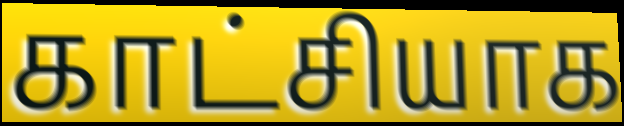
காட்சியாக